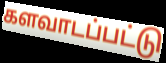
களவாடப்பட்டு